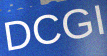
DCGI